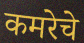
कमरेचे